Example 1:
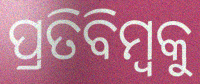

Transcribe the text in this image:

ପ୍ରତିବିମ୍ବକୁ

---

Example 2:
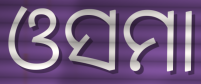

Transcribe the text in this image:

ଓସମା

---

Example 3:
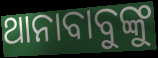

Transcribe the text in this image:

ଥାନାବାବୁଙ୍କୁ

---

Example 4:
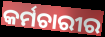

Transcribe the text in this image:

କର୍ମଚାରୀର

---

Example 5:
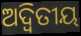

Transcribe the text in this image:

ଅଦ୍ଵିତୀୟ